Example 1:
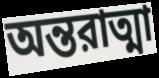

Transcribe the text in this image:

অন্তরাত্মা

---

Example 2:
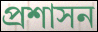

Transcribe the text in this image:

প্রশাসন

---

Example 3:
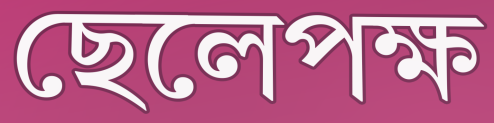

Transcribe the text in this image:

ছেলেপক্ষ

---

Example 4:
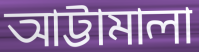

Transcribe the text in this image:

আট্টামালা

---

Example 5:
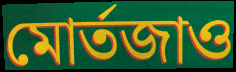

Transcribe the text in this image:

মোর্তজাও